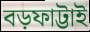
বড়ফাট্টাই